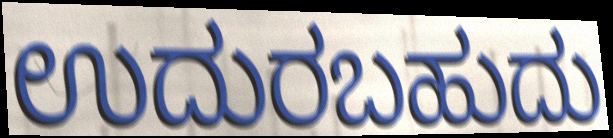
ಉದುರಬಹುದು